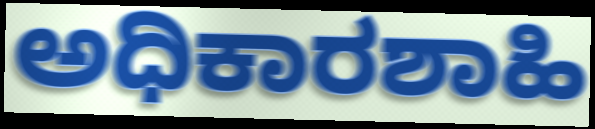
ಅಧಿಕಾರಶಾಹಿ